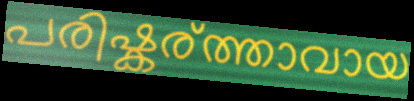
പരിഷ്കര്ത്താവായ